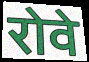
रोवे